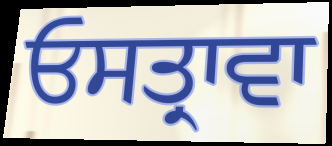
ਓਸਤ੍ਰਾਵਾ